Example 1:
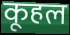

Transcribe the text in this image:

कूहल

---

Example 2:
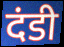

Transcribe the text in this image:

दंडी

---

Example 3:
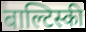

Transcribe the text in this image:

बाल्टिस्की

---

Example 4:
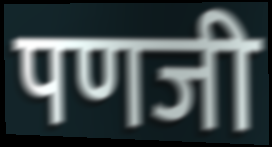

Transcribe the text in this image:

पणजी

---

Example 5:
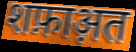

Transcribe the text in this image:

शफ़ाअ़त